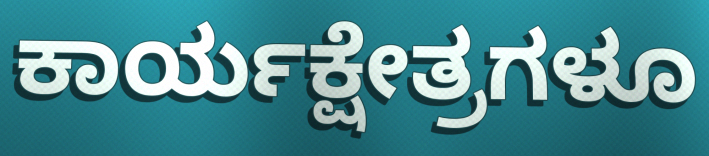
ಕಾರ್ಯಕ್ಷೇತ್ರಗಳೂ